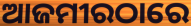
ଆଜମୀରଠାରେ